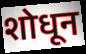
शोधून